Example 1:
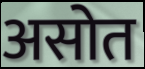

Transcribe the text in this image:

असोत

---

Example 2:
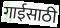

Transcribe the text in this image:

गाईसाठी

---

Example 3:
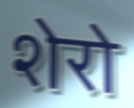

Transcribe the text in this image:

शेरो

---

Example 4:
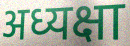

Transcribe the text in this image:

अध्यक्षा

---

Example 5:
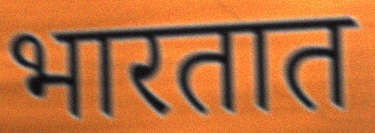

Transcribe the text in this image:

भारतात